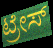
ಟ್ರೇಸ್